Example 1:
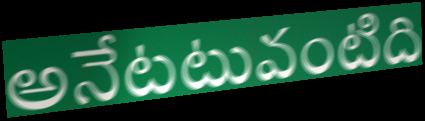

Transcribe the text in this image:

అనేటటువంటిది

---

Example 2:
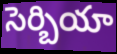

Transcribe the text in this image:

సెర్బియా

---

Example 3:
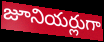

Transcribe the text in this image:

జూనియర్లుగా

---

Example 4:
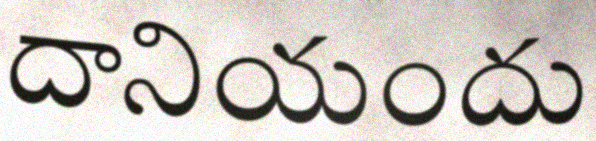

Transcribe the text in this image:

దానియందు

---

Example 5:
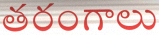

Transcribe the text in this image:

తరంగాలు